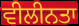
ਵੀਲੀਨਤਾ